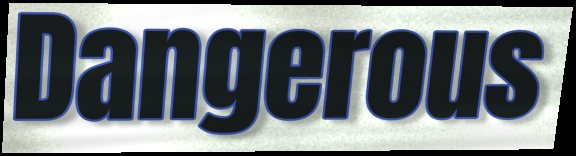
Dangerous